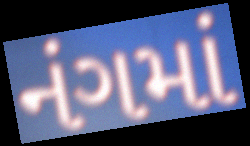
નંગમાં